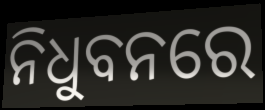
ନିଧୁବନରେ